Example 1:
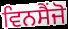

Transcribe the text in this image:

ਵਿਨਸੈਂਜੋ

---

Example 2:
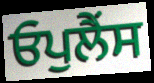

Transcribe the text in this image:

ਓਪੁਲੈਂਸ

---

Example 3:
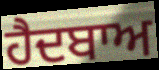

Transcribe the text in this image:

ਹੈਦਬਾਅ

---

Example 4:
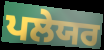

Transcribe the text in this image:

ਪਲੇਯਰ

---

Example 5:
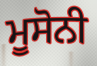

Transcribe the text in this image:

ਮੂਸੋਨੀ